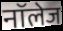
नॉलेज